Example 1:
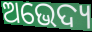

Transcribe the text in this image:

ଅଭେଦ୍ୟ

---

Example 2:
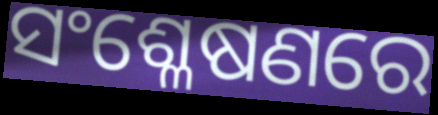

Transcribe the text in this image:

ସଂଶ୍ଳେଷଣରେ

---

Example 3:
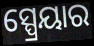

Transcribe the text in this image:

ସ୍ପ୍ରେୟାର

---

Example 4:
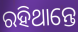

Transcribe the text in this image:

ରହିଥାନ୍ତେ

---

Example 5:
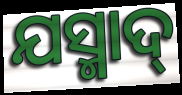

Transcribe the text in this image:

ଯସ୍ମାଦ୍